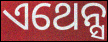
ଏଥେନ୍ସ